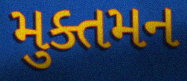
મુક્તમન